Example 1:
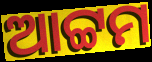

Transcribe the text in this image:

ଆଟ୍ଟମ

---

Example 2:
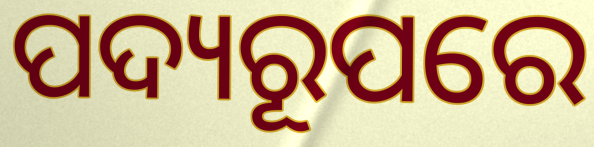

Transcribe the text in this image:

ପଦ୍ୟରୂପରେ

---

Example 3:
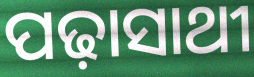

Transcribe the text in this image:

ପଢ଼ାସାଥୀ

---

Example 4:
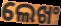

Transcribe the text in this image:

ଲେଖଂ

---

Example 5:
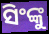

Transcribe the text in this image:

ସିଂଙ୍କୁ